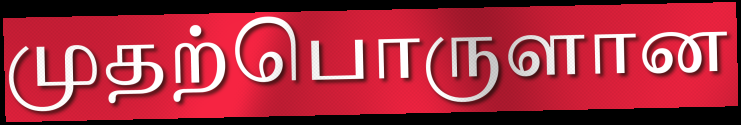
முதற்பொருளான